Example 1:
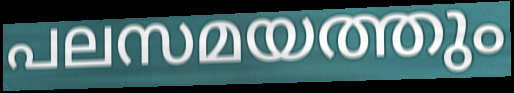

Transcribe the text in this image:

പലസമയത്തും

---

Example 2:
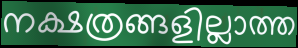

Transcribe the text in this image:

നക്ഷത്രങ്ങളില്ലാത്ത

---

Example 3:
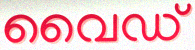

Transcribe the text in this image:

വൈഡ്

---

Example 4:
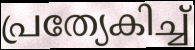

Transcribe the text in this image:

പ്രത്യേകിച്ച്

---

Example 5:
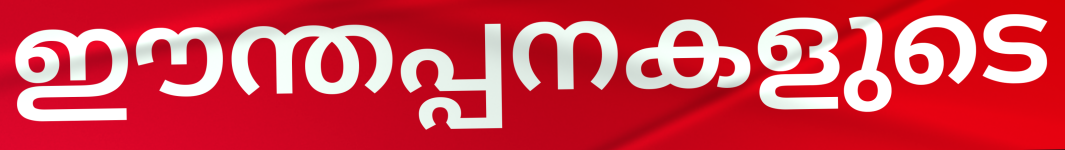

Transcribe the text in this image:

ഈന്തപ്പനകളുടെ